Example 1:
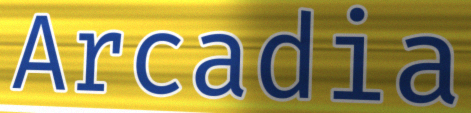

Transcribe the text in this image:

Arcadia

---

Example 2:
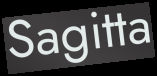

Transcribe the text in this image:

Sagitta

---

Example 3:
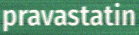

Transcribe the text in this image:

pravastatin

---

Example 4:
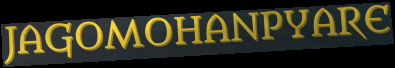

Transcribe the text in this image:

JAGOMOHANPYARE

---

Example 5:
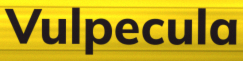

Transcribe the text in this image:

Vulpecula